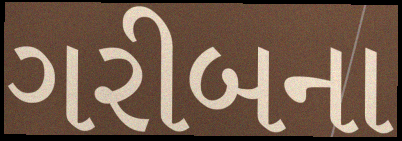
ગરીબના